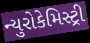
ન્યુરોકેમિસ્ટ્રી